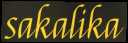
sakalika